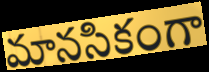
మానసికంగా